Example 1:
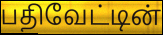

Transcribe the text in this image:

பதிவேட்டின்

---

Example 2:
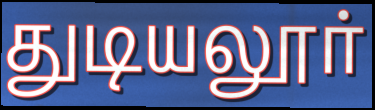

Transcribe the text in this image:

துடியலூர்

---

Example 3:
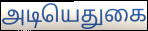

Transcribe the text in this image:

அடியெதுகை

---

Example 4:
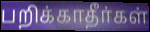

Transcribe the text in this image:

பறிக்காதீர்கள்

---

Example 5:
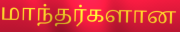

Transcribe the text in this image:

மாந்தர்களான